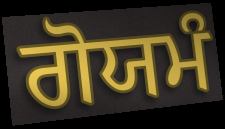
ਗੋਯਮੰ